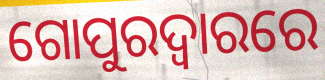
ଗୋପୁରଦ୍ବାରରେ